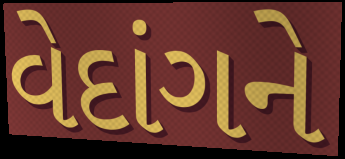
વેદાંગને